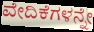
ವೇದಿಕೆಗಳನ್ನೇ